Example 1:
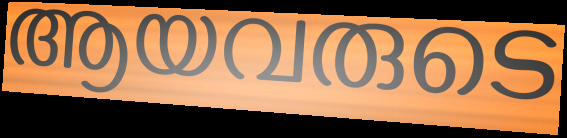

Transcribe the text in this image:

ആയവരുടെ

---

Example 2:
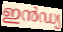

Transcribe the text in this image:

ഇൻഡ്യ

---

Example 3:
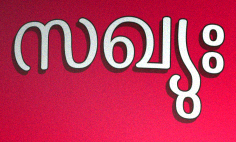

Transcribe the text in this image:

സഖ്യുഃ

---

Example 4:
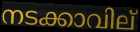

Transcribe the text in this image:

നടക്കാവില്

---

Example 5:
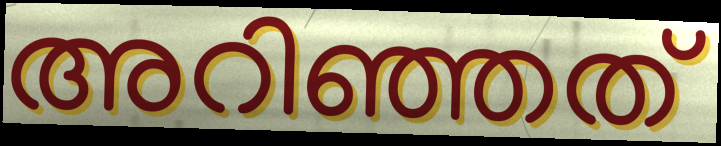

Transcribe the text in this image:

അറിഞ്ഞത്